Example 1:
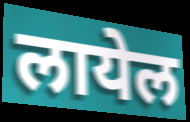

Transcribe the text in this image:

लायेल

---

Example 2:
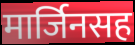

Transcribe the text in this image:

मार्जिनसह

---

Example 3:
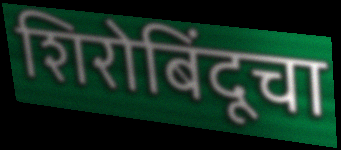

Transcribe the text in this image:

शिरोबिंदूचा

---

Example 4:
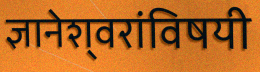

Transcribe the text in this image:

ज्ञानेश्वरांविषयी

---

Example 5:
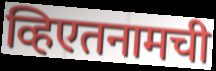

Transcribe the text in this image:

व्हिएतनामची